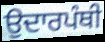
ਉਦਾਰਪੰਥੀ